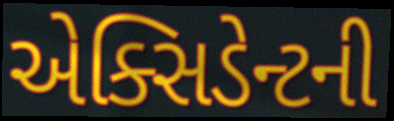
એક્સિડેન્ટની